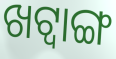
ଖଟ୍ଵାଙ୍ଗ